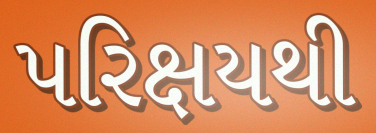
પરિક્ષયથી